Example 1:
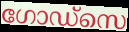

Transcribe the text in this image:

ഗോഡ്സെ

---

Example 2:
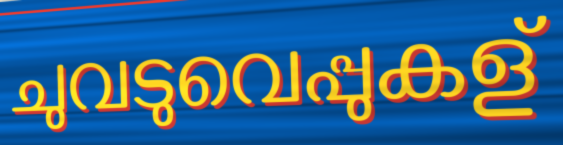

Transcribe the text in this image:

ചുവടുവെപ്പുകള്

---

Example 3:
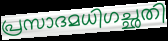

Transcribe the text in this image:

പ്രസാദമധിഗച്ഛതി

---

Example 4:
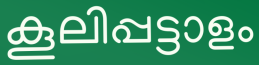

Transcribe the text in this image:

കൂലിപ്പട്ടാളം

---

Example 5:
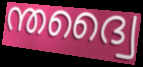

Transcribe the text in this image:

ന്തദ്വൈ